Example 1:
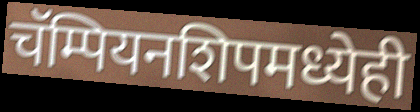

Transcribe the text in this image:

चॅम्पियनशिपमध्येही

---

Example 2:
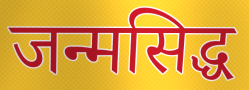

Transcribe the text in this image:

जन्मसिद्ध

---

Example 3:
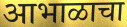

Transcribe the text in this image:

आभाळाचा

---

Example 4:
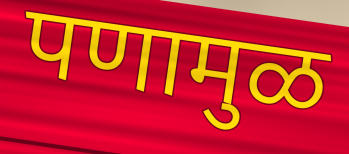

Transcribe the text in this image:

पणामुळ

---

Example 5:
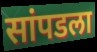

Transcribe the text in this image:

सांपडला